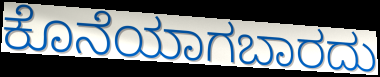
ಕೊನೆಯಾಗಬಾರದು